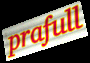
prafull